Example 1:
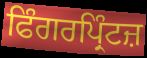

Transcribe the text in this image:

ਫਿੰਗਰਪ੍ਰਿੰਟਜ਼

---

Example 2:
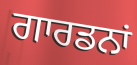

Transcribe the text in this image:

ਗਾਰਡਨਾਂ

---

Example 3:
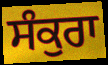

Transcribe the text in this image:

ਸੰਕੁਰਾ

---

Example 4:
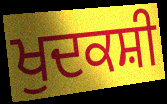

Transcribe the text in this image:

ਖੁਦਕਸ਼ੀ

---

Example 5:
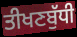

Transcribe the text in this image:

ਤੀਖਣਬੁੱਧੀ